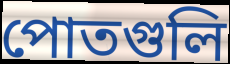
পোতগুলি